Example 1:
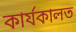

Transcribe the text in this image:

কাৰ্যকালত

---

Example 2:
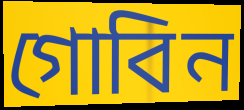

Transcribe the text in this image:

গোবিন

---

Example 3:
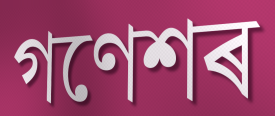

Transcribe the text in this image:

গণেশৰ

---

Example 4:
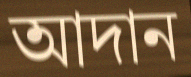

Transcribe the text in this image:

আদান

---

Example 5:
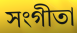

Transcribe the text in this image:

সংগীতা